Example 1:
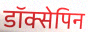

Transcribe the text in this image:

डॉक्सेपिन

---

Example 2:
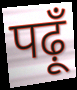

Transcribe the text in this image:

पढ़ूँ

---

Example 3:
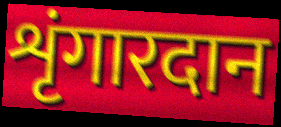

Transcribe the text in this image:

शृंगारदान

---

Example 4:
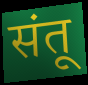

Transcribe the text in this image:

संतू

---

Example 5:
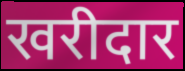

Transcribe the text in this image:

खरीदार